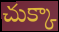
చుక్కా